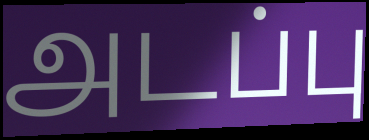
அடப்பு